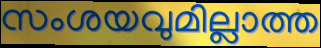
സംശയവുമില്ലാത്ത